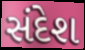
સંદેશ